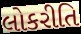
લોકરીતિ